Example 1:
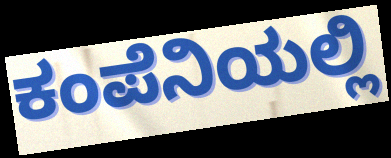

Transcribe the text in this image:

ಕಂಪೆನಿಯಲ್ಲಿ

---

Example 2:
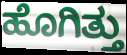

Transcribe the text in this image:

ಹೊಗಿತ್ತು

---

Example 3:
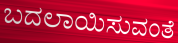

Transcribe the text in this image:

ಬದಲಾಯಿಸುವಂತೆ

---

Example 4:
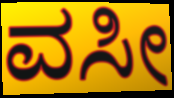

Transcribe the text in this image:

ವಸೀ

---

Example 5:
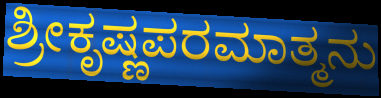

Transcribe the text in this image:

ಶ್ರೀಕೃಷ್ಣಪರಮಾತ್ಮನು